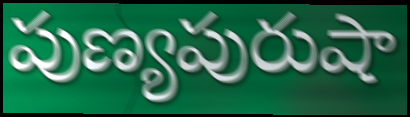
పుణ్యపురుషా